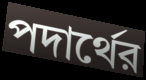
পদার্থের